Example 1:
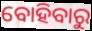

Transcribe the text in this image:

ବୋହିବାରୁ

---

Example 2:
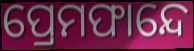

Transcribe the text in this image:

ପ୍ରେମଫାନ୍ଦେ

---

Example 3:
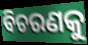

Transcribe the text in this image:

ବିଚରଣକୁ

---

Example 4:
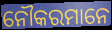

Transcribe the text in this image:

ନୌକରମାନେ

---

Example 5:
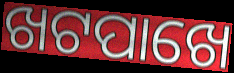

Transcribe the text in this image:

ଖଟପାଖେ